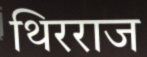
थिरराज